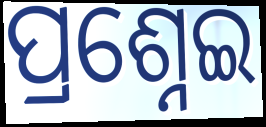
ପ୍ରଶ୍ନେଇ